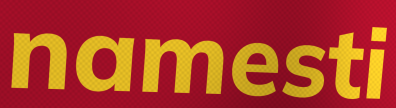
namesti